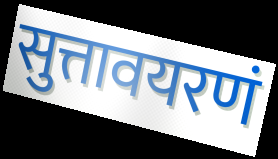
सुत्तावयरणं